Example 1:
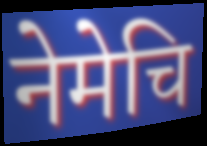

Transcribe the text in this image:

नेमेचि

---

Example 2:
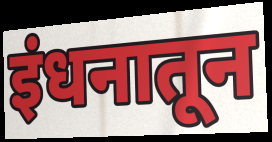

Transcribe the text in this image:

इंधनातून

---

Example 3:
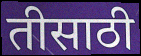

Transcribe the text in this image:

तीसाठी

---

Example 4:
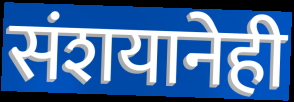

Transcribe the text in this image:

संशयानेही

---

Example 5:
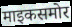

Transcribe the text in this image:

माइकसमोर